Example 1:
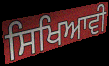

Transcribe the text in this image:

ਸਿਖਿਆਵੀ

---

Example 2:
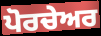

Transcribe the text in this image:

ਪੋਰਚੇਅਰ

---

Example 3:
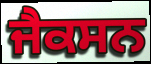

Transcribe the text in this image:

ਜੈਕਸਨ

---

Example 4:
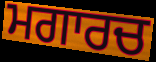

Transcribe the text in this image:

ਮਗਾਰਚ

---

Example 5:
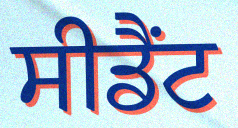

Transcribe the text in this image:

ਸੀਡੈਂਟ